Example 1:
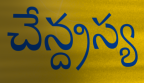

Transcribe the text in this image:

చేన్ద్రస్య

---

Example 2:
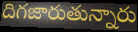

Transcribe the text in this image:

దిగజారుతున్నారు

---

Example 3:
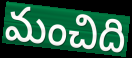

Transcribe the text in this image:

మంచిది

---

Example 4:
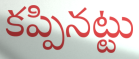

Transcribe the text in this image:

కప్పినట్టు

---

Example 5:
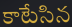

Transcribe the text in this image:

కాటేసిన